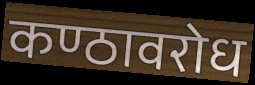
कण्ठावरोध